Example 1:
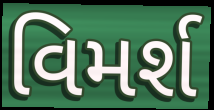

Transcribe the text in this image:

વિમર્શ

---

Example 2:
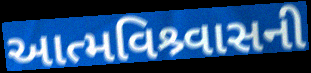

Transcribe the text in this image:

આત્મવિશ્ર્વાસની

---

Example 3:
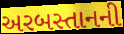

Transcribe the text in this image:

અરબસ્તાનની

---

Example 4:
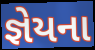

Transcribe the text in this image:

જ્ઞેયના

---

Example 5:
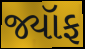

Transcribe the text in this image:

જ્યૉફ